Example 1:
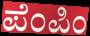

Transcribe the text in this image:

ಪೆಂಪಿಂ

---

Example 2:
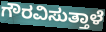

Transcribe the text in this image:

ಗೌರವಿಸುತ್ತಾಳೆ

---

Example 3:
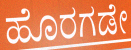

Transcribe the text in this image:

ಹೊರಗಡೇ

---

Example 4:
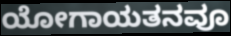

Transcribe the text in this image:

ಯೋಗಾಯತನವೂ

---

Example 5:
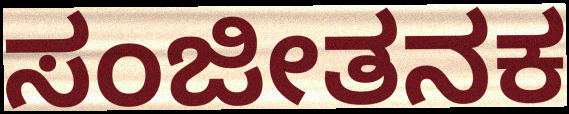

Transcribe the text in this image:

ಸಂಜೀತನಕ